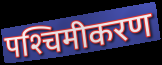
पश्चिमीकरण